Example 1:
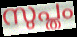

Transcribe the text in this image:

സുപ്തം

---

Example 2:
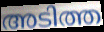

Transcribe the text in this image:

അടിത്ത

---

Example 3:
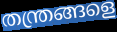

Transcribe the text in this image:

തന്ത്രങ്ങളെ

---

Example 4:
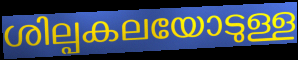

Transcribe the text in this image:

ശില്പകലയോടുള്ള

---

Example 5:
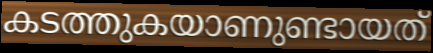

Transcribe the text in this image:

കടത്തുകയാണുണ്ടായത്